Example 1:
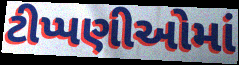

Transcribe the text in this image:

ટીપ્પણીઓમાં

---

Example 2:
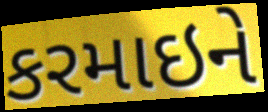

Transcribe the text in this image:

કરમાઇને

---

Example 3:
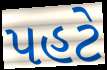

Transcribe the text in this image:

પહટે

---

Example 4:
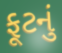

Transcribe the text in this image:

ફૂટનું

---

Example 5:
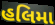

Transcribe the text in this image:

હલિમા